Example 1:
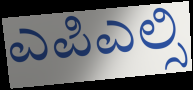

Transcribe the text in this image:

ಎಪಿಎಲ್ಸಿ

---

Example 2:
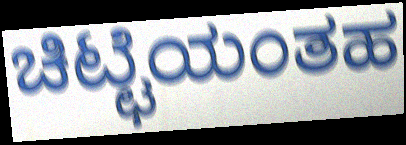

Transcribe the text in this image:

ಚಿಟ್ಟೆಯಂತಹ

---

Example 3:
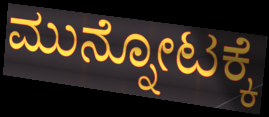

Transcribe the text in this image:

ಮುನ್ನೋಟಕ್ಕೆ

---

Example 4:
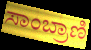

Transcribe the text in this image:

ಸಾಂಬ್ರಾಣಿ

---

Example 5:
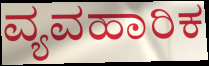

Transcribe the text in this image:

ವ್ಯವಹಾರಿಕ